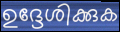
ഉദ്ദേശിക്കുക